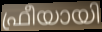
ഫ്രീയായി